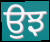
ਉਝ